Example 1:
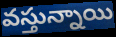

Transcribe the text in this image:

వస్తున్నాయి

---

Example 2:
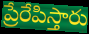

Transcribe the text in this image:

ప్రేరేపిస్తారు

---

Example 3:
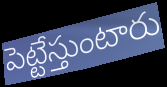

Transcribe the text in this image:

పెట్టేస్తుంటారు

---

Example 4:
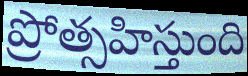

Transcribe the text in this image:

ప్రోత్సహిస్తుంది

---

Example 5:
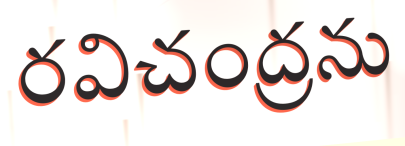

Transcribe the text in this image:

రవిచంద్రను